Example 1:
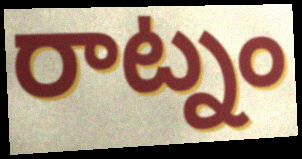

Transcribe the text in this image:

రాట్నం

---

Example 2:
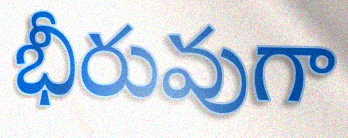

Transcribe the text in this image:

భీరువుగా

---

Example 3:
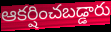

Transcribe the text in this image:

ఆకర్షించబడ్డారు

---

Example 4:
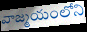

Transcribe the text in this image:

వాజ్మయంలోని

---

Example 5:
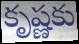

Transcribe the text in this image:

కృష్ణకు